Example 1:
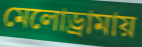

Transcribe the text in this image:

মেলোড্রামায়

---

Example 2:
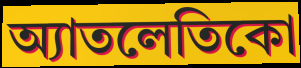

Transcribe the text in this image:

অ্যাতলেতিকো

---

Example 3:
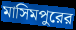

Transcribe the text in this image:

মাসিমপুরের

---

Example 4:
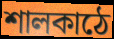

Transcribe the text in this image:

শালকাঠে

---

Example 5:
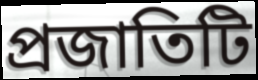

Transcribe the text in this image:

প্রজাতিটি